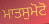
ਮਾਤਸੁਮੋਟੋ